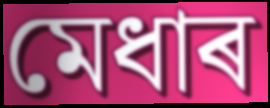
মেধাৰ